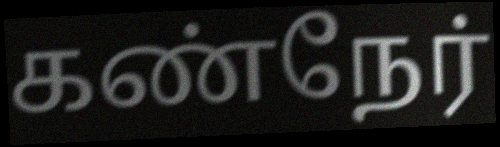
கண்நேர்